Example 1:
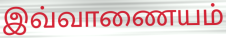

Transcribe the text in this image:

இவ்வாணையம்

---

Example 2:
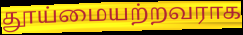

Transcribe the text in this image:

தூய்மையற்றவராக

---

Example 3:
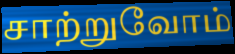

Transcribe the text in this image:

சாற்றுவோம்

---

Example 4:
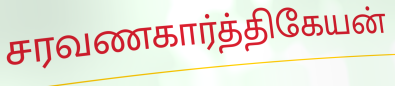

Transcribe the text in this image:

சரவணகார்த்திகேயன்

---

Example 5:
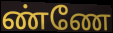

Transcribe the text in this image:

ண்ணே